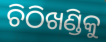
ଚିଠିଖଣ୍ଡିକୁ